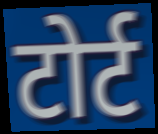
टोर्ट